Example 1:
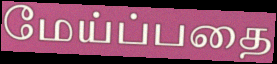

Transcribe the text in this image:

மேய்ப்பதை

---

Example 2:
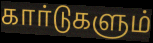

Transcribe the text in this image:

கார்டுகளும்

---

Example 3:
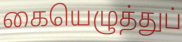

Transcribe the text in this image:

கையெழுத்துப்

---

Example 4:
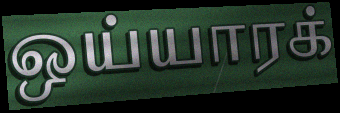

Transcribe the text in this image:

ஒய்யாரக்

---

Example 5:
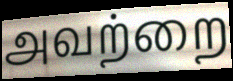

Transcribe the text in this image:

அவற்றை